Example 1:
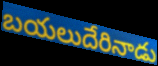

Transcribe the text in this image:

బయలుదేరినాడు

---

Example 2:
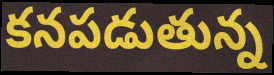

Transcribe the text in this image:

కనపడుతున్న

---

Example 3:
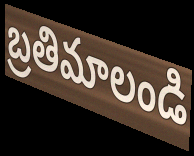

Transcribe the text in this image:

బ్రతిమాలండి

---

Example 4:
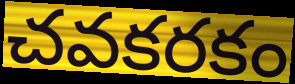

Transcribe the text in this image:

చవకరకం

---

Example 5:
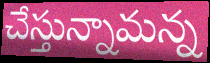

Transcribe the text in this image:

చేస్తున్నామన్న